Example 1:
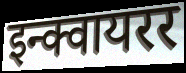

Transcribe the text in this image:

इन्क्वायरर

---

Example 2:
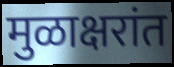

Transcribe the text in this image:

मुळाक्षरांत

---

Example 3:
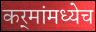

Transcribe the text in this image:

कर्मांमध्येच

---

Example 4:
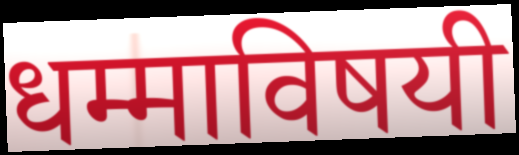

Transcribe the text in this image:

धम्माविषयी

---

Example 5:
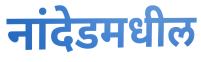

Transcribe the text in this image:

नांदेडमधील